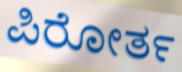
ಪಿರೋರ್ತ